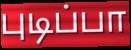
புடிப்பா